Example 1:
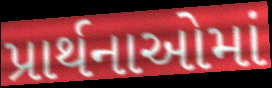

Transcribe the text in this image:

પ્રાર્થનાઓમાં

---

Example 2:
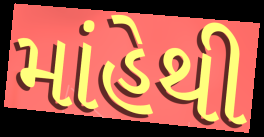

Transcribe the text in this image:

માંહેથી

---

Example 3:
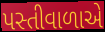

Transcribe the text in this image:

પસ્તીવાળાએ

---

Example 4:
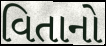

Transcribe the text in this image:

વિતાનો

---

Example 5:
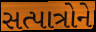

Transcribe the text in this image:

સત્પાત્રોને